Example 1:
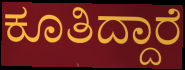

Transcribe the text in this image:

ಕೂತಿದ್ದಾರೆ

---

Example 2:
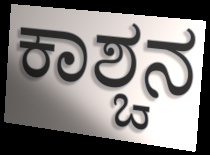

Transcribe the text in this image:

ಕಾಶ್ಚನ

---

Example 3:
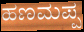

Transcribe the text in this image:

ಹಣಮಪ್ಪ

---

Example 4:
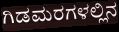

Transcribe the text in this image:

ಗಿಡಮರಗಳಲ್ಲಿನ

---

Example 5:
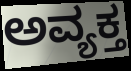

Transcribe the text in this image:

ಅವ್ಯಕ್ತ